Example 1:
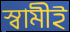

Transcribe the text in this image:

স্বামীই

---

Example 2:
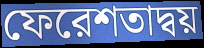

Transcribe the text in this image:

ফেরেশতাদ্বয়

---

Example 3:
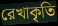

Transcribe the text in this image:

রেখাকৃতি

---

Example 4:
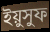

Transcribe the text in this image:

ইয়ুসুফ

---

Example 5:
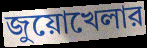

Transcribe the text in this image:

জুয়োখেলার